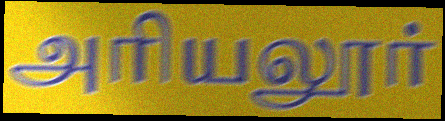
அரியலூர்